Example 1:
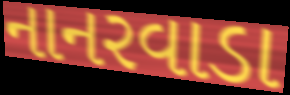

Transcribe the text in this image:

નાનરવાડા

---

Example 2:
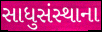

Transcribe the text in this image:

સાધુસંસ્થાના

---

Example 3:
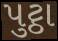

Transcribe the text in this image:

પુટ્ઠા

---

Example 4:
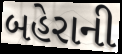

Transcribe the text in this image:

બહેરાની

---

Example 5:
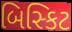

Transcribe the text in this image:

બિસ્કિટ